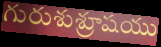
గురుశుశ్రూషయు